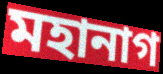
মহানাগ